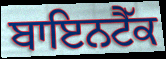
ਬਾਇਨਟੈੱਕ